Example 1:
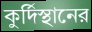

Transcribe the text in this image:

কুর্দিস্থানের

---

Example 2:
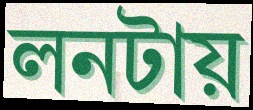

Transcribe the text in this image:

লনটায়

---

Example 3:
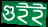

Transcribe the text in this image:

গুইই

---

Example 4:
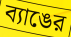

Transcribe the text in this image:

ব্যাঙের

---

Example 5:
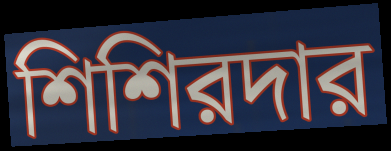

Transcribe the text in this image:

শিশিরদার